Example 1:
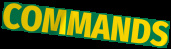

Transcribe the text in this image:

COMMANDS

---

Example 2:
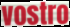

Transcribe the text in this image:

vostro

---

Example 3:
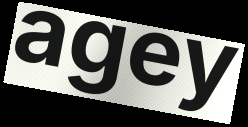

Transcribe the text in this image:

agey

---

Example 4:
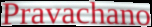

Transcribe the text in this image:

Pravachano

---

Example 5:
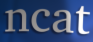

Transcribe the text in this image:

ncat